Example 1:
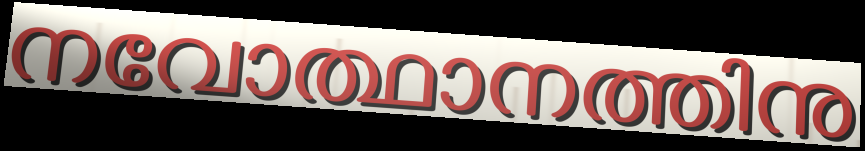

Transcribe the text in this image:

നവോത്ഥാനത്തിനു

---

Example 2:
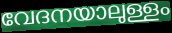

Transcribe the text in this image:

വേദനയാലുള്ളം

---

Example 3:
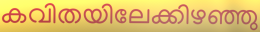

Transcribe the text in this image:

കവിതയിലേക്കിഴഞ്ഞു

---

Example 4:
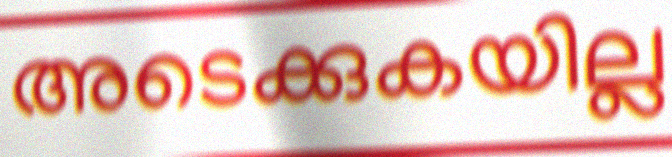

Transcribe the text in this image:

അടെക്കുകയില്ല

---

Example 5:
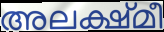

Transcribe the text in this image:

അലക്ഷ്മീ